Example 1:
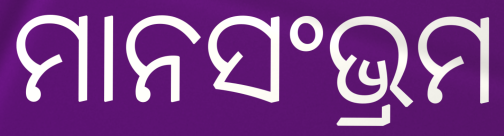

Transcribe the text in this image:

ମାନସଂଭ୍ରମ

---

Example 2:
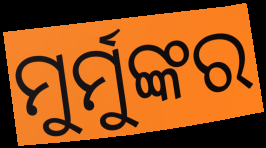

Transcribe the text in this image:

ମୁର୍ମୁଙ୍କର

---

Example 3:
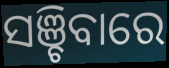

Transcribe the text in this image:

ସଞ୍ଚିବାରେ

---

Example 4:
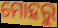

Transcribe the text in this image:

ମୋହରୁ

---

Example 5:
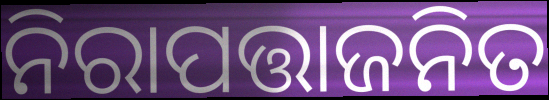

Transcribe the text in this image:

ନିରାପତ୍ତାଜନିତ